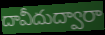
దావీదుద్వారా